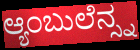
ಆ್ಯಂಬುಲೆನ್ಸ್ನ